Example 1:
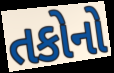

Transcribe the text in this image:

તકોનો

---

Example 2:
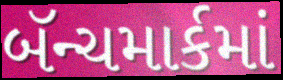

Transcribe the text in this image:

બૅન્ચમાર્કમાં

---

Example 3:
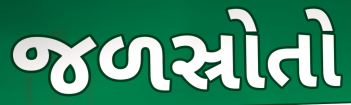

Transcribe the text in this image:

જળસ્રોતો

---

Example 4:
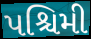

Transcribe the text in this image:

પશ્ચિમી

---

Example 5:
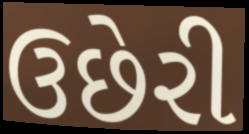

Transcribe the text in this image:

ઉછેરી